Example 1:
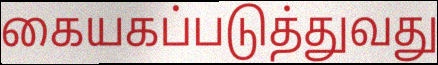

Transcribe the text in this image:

கையகப்படுத்துவது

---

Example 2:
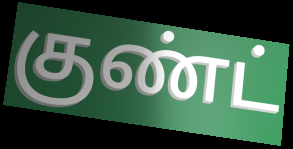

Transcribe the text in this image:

குண்ட்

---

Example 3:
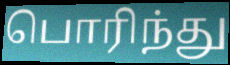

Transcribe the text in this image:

பொரிந்து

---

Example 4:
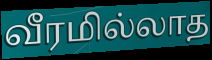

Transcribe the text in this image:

வீரமில்லாத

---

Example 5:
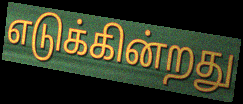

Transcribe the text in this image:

எடுக்கின்றது